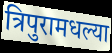
त्रिपुरामधल्या